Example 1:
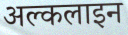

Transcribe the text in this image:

अल्कलाइन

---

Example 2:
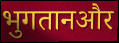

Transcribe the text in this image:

भुगतानऔर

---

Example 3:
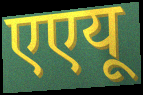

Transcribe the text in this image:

एएयू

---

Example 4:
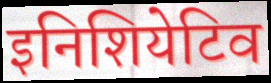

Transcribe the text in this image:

इनिशियेटिव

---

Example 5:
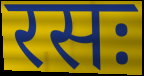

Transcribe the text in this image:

रसः